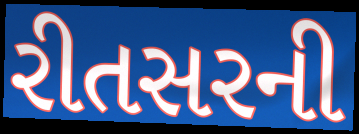
રીતસરની